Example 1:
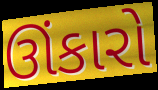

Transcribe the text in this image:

ઊંકારો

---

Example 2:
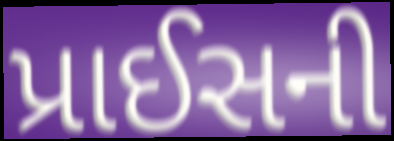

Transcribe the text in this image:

પ્રાઈસની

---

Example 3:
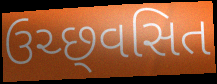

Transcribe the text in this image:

ઉચ્છ્‌વસિત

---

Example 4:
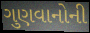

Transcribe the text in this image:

ગુણવાનોની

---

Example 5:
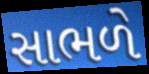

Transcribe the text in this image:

સાભળે